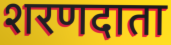
शरणदाता